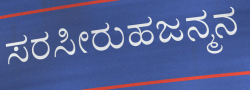
ಸರಸೀರುಹಜನ್ಮನ